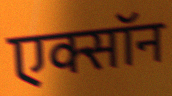
एक्सॉन